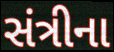
સંત્રીના